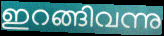
ഇറങ്ങിവന്നു